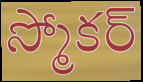
స్మోకర్